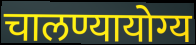
चालण्यायोग्य